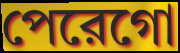
পেরেগো